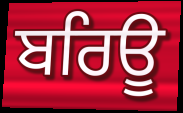
ਬਰਿਊ